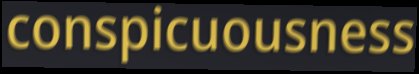
conspicuousness